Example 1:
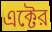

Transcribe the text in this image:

এক্টের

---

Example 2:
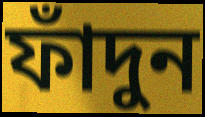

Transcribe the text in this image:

ফাঁদুন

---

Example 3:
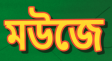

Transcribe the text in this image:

মউজে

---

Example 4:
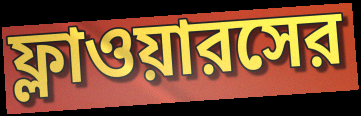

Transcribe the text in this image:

ফ্লাওয়ারসের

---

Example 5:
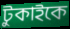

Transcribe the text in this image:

টুকাইকে